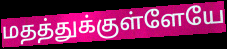
மதத்துக்குள்ளேயே